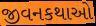
જીવનકથાઓ